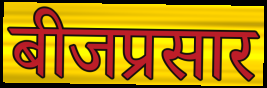
बीजप्रसार